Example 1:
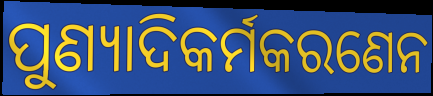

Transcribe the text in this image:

ପୁଣ୍ଯାଦିକର୍ମକରଣେନ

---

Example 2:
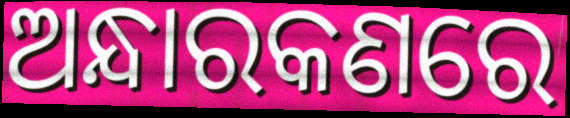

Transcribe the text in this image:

ଅନ୍ଧାରକଣରେ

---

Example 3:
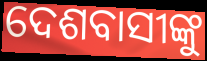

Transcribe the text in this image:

ଦେଶବାସୀଙ୍କୁ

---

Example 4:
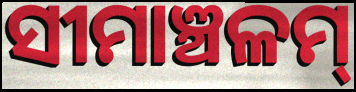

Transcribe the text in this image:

ସୀମାଞ୍ଚଳମ୍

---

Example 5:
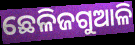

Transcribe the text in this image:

ଛେଳିଜଗୁଆଳି